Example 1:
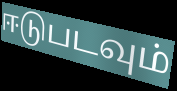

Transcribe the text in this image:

ஈடுபடவும்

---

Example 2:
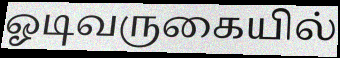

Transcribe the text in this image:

ஓடிவருகையில்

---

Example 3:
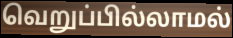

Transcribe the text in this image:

வெறுப்பில்லாமல்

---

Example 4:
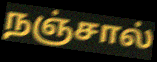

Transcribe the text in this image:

நஞ்சால்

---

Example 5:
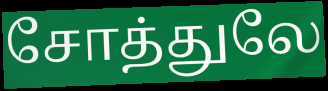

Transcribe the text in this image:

சோத்துலே